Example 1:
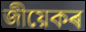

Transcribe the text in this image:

জীয়েকৰ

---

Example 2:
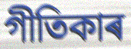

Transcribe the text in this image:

গীতিকাৰ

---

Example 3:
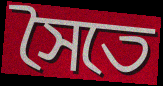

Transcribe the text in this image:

সৈতে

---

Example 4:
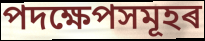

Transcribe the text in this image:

পদক্ষেপসমূহৰ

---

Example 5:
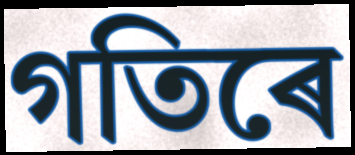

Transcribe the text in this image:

গতিৰে